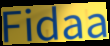
Fidaa